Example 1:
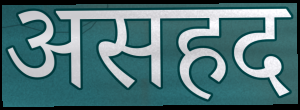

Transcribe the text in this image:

असहद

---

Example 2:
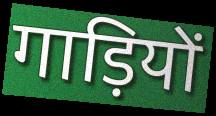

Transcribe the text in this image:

गाड़ियों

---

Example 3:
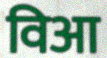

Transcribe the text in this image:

विआ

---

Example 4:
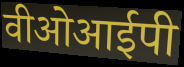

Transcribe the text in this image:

वीओआईपी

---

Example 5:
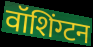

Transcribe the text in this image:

वॉशिंग्टन